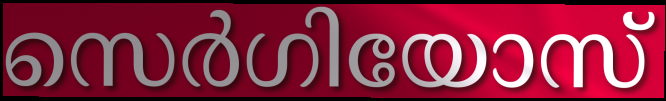
സെർഗിയോസ്